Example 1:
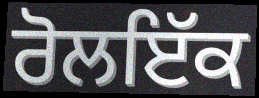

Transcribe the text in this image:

ਰੋਲਇੱਕ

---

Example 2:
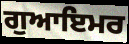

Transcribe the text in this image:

ਗੁਆਇਮਰ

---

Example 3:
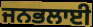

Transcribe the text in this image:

ਜਨਭਲਾਈ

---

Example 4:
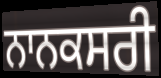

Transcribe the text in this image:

ਨਾਨਕਸਰੀ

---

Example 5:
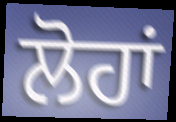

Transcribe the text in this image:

ਲੋਹਾਂ